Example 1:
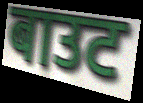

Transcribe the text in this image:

बाउट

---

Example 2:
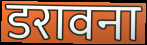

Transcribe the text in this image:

डरावना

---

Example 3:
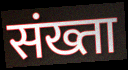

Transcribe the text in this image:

संख्ता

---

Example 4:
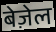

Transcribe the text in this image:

बेज़ेल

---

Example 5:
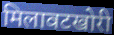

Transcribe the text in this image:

मिलावटखोरी